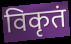
विकृतं